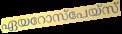
ഏയറോസ്പേയ്സ്